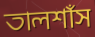
তালশাঁস